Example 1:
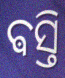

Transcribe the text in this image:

ଵସ୍ତି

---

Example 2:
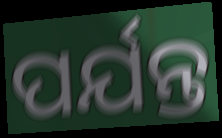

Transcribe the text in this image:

ପର୍ଯନ୍ତ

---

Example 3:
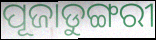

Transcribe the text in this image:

ପୂଜାଡୁଙ୍ଗରୀ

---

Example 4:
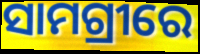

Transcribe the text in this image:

ସାମଗ୍ରୀରେ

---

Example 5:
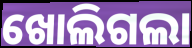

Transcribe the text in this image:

ଖୋଲିଗଲା